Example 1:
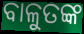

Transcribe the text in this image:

ବାଳୁତଙ୍କ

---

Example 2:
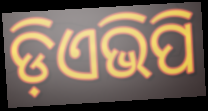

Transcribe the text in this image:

ଡ଼ିଏଭିପି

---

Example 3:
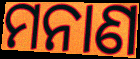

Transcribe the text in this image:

ମନାଣ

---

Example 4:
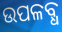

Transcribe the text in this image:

ଉପଳବ୍ଧ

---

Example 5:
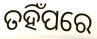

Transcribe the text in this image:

ତହିଁପରେ